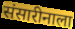
संसारीनाला